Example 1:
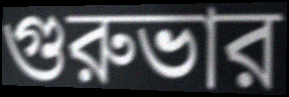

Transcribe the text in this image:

গুরুভার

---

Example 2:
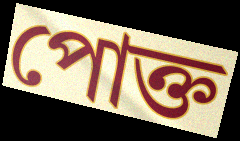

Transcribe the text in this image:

পোক্ত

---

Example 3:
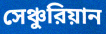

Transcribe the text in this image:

সেঞ্চুরিয়ান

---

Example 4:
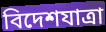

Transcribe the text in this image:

বিদেশযাত্রা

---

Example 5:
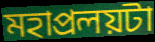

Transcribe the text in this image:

মহাপ্রলয়টা